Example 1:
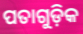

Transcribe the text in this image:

ପତାଗୁଡ଼ିକ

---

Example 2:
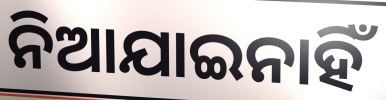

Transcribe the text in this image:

ନିଆଯାଇନାହିଁ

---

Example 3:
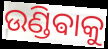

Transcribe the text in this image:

ଉଣ୍ଡିଵାକୁ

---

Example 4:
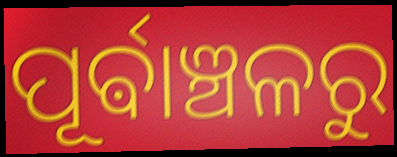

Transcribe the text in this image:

ପୂର୍ଵାଞ୍ଚଳରୁ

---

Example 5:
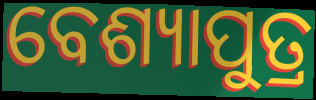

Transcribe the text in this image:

ବେଶ୍ୟାପୁତ୍ର